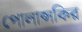
পোলান্সকির